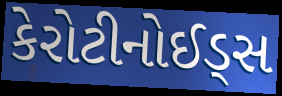
કેરોટીનોઈડ્સ